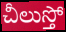
చీలుస్తో